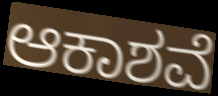
ಆಕಾಶವೆ